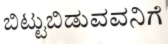
ಬಿಟ್ಟುಬಿಡುವವನಿಗೆ